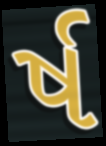
ર્ષ